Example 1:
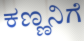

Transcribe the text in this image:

ಕಣ್ಣನಿಗೆ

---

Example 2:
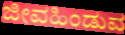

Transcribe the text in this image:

ಜೀವಹಿಂಡುವ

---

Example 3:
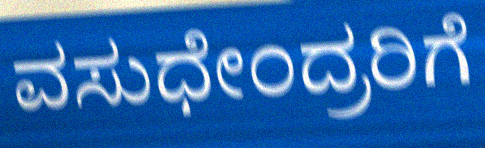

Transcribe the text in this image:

ವಸುಧೇಂದ್ರರಿಗೆ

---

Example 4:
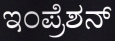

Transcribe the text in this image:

ಇಂಪ್ರೆಶನ್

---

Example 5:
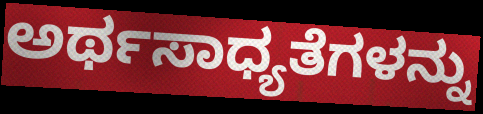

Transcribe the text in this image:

ಅರ್ಥಸಾಧ್ಯತೆಗಳನ್ನು